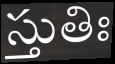
స్తుతిః